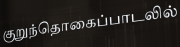
குறுந்தொகைப்பாடலில்